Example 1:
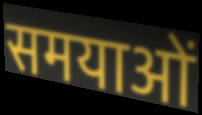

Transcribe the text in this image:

समयाओं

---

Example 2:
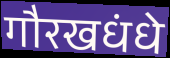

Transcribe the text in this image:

गौरखधंधे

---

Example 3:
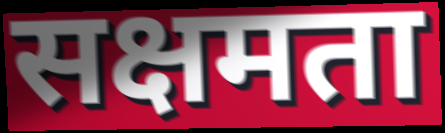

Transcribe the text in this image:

सक्षमता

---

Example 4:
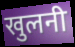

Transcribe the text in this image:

खुलनी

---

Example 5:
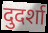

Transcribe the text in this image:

दुदर्शा